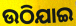
ଉଠିଯାଇ